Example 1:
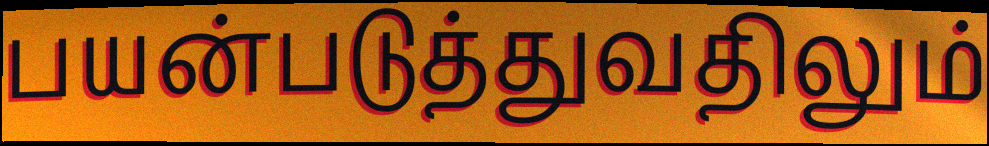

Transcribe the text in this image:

பயன்படுத்துவதிலும்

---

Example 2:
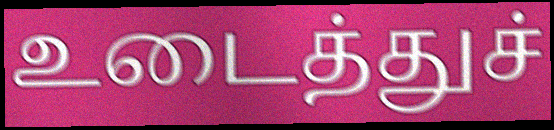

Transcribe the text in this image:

உடைத்துச்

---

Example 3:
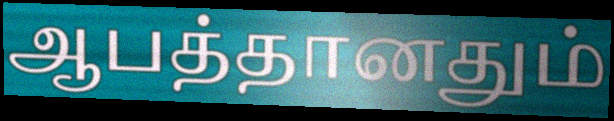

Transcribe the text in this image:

ஆபத்தானதும்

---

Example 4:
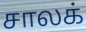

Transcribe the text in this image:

சாலக்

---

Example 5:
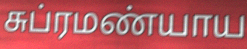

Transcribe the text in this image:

சுப்ரமண்யாய